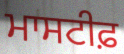
ਮਾਸਟੀਫ਼